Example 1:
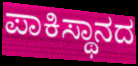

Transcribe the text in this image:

ಪಾಕಿಸ್ಥಾನದ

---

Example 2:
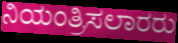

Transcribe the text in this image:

ನಿಯಂತ್ರಿಸಲಾರರು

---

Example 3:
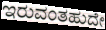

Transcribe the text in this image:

ಇರುವಂತಹುದೇ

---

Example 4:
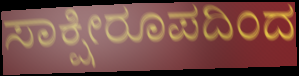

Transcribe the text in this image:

ಸಾಕ್ಷೀರೂಪದಿಂದ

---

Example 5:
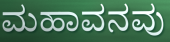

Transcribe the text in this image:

ಮಹಾವನವು